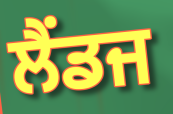
ਲੈਂਡਜ